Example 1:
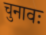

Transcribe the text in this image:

चुनावः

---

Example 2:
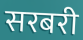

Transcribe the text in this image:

सरबरी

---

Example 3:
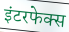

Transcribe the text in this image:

इंटरफेक्स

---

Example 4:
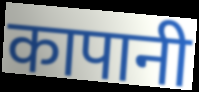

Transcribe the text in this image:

कापानी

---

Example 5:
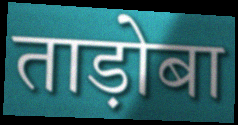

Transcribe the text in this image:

ताड़ोबा